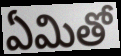
ఏమితో